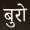
बुरो